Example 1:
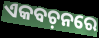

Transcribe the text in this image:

ଏକବଚ଼ନରେ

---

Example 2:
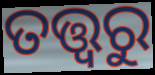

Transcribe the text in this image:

ତତ୍ତ୍ୱରୁ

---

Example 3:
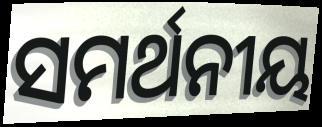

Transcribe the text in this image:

ସମର୍ଥନୀୟ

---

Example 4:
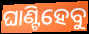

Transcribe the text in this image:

ଘାଣ୍ଟିହେବୁ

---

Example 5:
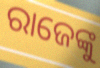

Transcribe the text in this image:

ରାଜେଙ୍କୁ